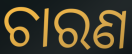
ଚାରଣ